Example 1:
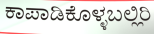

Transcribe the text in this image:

ಕಾಪಾಡಿಕೊಳ್ಳಬಲ್ಲಿರಿ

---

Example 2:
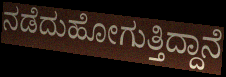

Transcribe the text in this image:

ನಡೆದುಹೋಗುತ್ತಿದ್ದಾನೆ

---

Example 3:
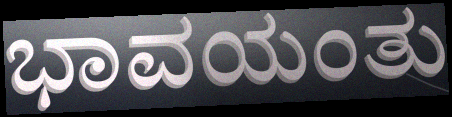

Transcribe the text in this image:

ಭಾವಯಂತು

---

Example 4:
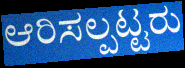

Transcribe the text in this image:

ಆರಿಸಲ್ಪಟ್ಟರು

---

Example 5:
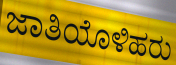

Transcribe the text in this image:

ಜಾತಿಯೊಳಿಹರು